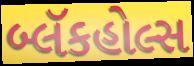
બ્લૅકહોલ્સ